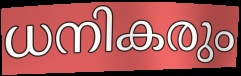
ധനികരും